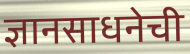
ज्ञानसाधनेची